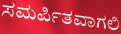
ಸಮರ್ಪಿತವಾಗಲಿ